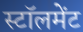
स्टॉलमेंट